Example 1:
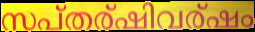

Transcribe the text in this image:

സപ്തര്ഷിവര്ഷം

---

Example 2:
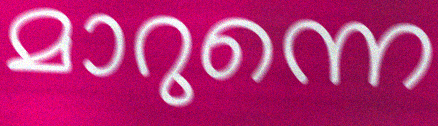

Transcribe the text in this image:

മാറുന്നെ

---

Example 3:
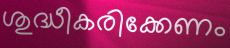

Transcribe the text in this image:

ശുദ്ധീകരിക്കേണം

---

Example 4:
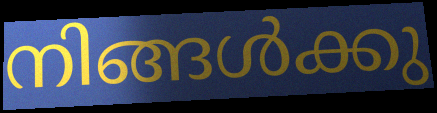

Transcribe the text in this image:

നിങ്ങൾക്കു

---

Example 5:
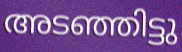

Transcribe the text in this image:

അടഞ്ഞിട്ടു